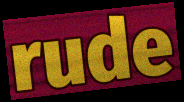
rude